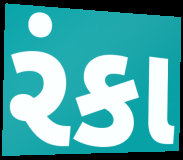
રંકા